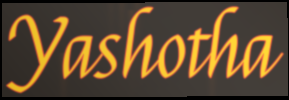
Yashotha